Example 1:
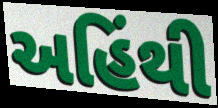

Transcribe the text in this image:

અહિંથી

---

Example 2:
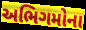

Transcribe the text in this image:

અભિગમોના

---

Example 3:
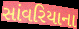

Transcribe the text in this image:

સાંવરિયાના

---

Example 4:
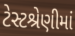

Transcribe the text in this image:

ટેસ્ટશ્રેણીમાં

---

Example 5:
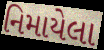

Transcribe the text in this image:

નિમાયેલા